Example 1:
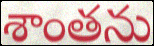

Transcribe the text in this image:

శాంతను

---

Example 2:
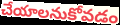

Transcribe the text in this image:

చేయాలనుకోవడం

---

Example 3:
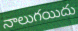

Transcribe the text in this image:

నాలుగయిదు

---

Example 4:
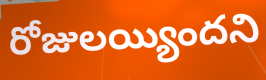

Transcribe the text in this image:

రోజులయ్యిందని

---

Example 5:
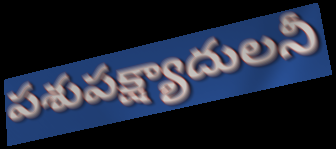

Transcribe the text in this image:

పశుపక్ష్యాదులనీ